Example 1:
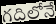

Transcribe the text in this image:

గదిలోనే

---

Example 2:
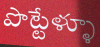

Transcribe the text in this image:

పొట్టేళ్ళూ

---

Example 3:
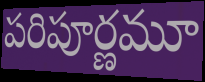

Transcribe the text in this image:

పరిపూర్ణమూ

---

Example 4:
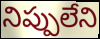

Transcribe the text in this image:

నిప్పులేని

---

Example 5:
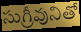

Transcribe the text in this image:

సుగ్రీవునితో